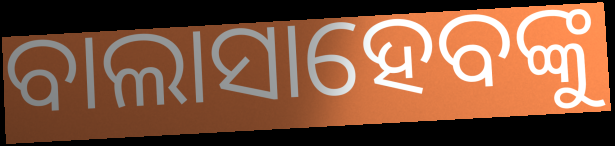
ବାଲାସାହେବଙ୍କୁ